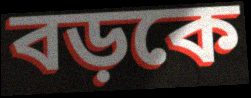
বড়কে